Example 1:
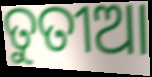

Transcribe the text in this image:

ତୁତୀଆ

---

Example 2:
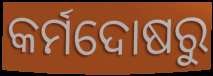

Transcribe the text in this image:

କର୍ମଦୋଷରୁ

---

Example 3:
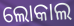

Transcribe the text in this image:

ଲୋକାଲ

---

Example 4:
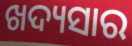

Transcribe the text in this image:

ଖଦ୍ୟସାର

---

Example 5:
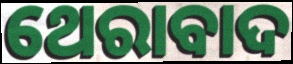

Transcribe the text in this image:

ଥେରାବାଦ